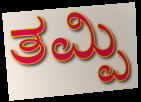
ತಮ್ಪಿ